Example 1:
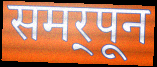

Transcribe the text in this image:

समर्पून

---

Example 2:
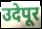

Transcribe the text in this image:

उदेपूर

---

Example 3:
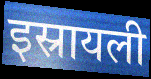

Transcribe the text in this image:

इस्रायली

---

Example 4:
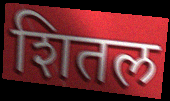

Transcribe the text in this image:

शितल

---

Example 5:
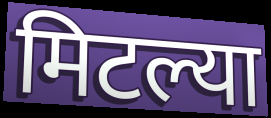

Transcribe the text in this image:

मिटल्या